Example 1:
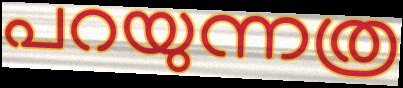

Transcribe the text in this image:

പറയുന്നത്ര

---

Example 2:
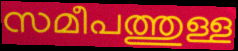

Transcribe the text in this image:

സമീപത്തുള്ള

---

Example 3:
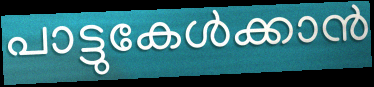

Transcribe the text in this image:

പാട്ടുകേൾക്കാൻ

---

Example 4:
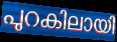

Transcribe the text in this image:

പുറകിലായി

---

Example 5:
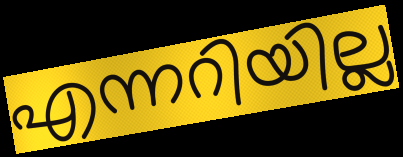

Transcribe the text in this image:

എന്നറിയില്ല